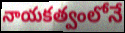
నాయకత్వంలోనే